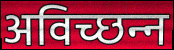
अविच्छन्न